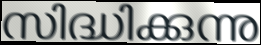
സിദ്ധിക്കുന്നു